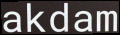
akdam